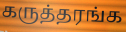
கருத்தரங்க